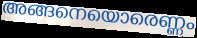
അങ്ങനെയൊരെണ്ണം